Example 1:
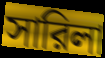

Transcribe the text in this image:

সারিলা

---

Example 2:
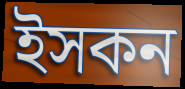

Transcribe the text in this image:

ইসকন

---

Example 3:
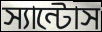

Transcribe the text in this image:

স্যান্টোস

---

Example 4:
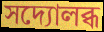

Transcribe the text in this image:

সদ্যোলব্ধ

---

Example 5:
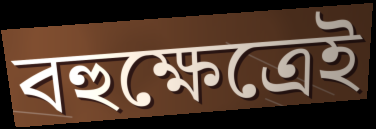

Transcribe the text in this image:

বহুক্ষেত্রেই